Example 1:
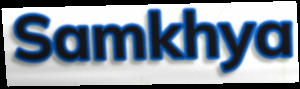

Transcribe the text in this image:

Samkhya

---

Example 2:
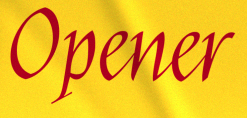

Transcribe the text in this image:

Opener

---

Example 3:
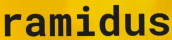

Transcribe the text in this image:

ramidus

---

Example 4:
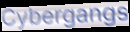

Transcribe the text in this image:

Cybergangs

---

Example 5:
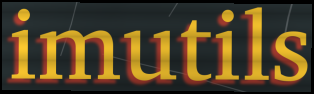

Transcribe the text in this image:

imutils